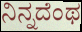
ನಿನ್ನದೆಂಥ